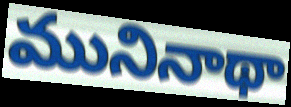
మునినాథా